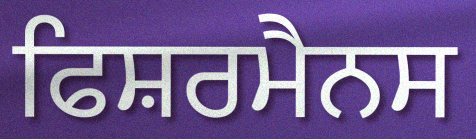
ਫਿਸ਼ਰਮੈਨਸ